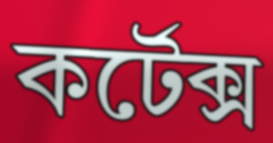
কর্টেক্স